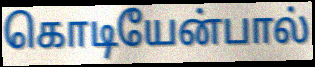
கொடியேன்பால்